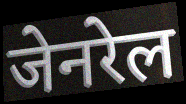
जेनरेल